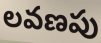
లవణపు